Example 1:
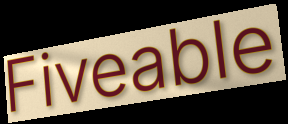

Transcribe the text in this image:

Fiveable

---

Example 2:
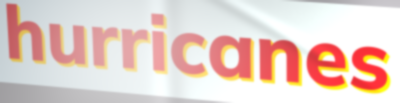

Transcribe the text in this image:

hurricanes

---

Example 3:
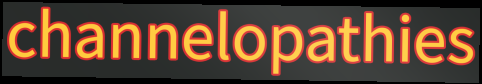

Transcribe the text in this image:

channelopathies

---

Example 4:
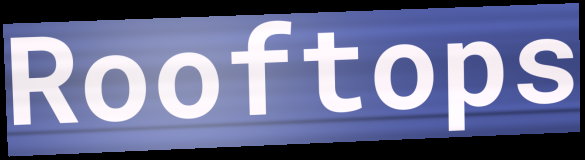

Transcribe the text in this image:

Rooftops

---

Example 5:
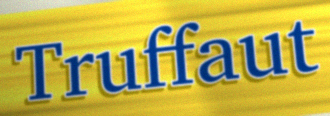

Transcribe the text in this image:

Truffaut